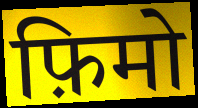
फ़िमो